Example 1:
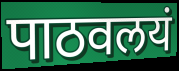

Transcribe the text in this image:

पाठवलयं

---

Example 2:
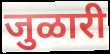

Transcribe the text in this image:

जुळारी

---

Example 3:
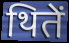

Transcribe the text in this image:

थितें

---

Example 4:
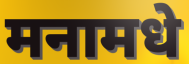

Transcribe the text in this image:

मनामधे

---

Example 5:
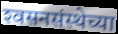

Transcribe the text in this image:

श्वसनसंस्थेच्या